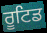
ਰੂਟਿਡ